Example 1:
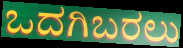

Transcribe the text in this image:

ಒದಗಿಬರಲು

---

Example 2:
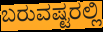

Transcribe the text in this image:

ಬರುವಷ್ಟರಲ್ಲಿ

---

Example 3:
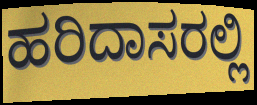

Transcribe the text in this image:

ಹರಿದಾಸರಲ್ಲಿ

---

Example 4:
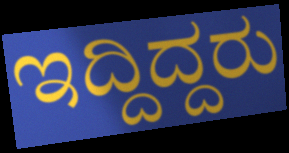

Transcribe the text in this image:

ಇದ್ದಿದ್ದರು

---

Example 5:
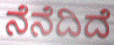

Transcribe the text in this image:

ನೆನೆದಿದೆ